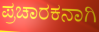
ಪ್ರಚಾರಕನಾಗಿ